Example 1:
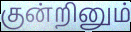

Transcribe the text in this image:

குன்றினும்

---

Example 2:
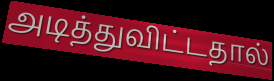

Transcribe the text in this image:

அடித்துவிட்டதால்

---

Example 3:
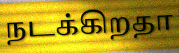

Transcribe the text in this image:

நடக்கிறதா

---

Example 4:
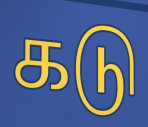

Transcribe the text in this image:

கடு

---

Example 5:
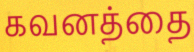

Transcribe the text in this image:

கவனத்தை